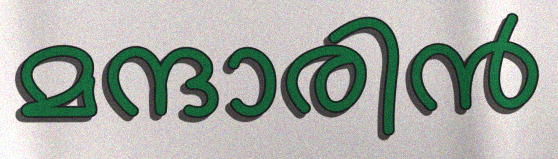
മന്ദാരിൻ